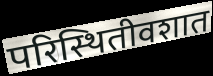
परिस्थितीवशात